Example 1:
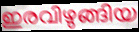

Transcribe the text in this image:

ഇരവിഴുങ്ങിയ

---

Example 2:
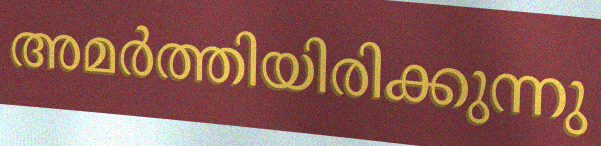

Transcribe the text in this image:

അമർത്തിയിരിക്കുന്നു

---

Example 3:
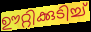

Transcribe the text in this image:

ഊറ്റിക്കുടിച്ച്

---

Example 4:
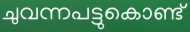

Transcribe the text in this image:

ചുവന്നപട്ടുകൊണ്ട്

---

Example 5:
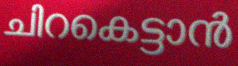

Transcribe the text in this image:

ചിറകെട്ടാൻ